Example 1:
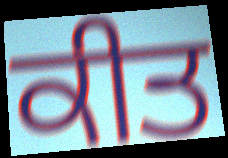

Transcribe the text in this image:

ਕੀਤ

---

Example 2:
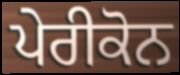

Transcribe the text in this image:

ਪੇਰੀਕੋਨ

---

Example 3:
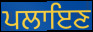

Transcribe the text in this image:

ਪਲਾਇਣ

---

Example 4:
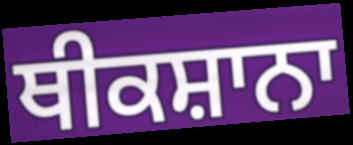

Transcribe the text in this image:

ਥੀਕਸ਼ਾਨਾ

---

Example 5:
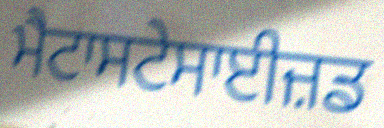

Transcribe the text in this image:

ਮੈਟਾਸਟੇਸਾਈਜ਼ਡ